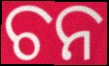
ଚନ